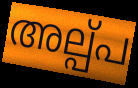
അല്പ്പ